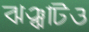
ঝঞ্ঝাটও